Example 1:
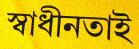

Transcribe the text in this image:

স্বাধীনতাই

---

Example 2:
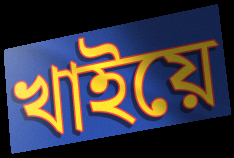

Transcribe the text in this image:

খাইয়ে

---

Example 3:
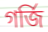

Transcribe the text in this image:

গৰ্জি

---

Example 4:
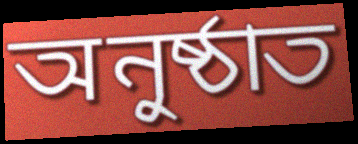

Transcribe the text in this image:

অনুষ্ঠাত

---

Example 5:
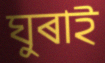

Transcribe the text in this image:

ঘুৰাই